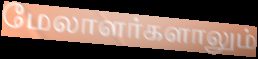
மேலாளர்களாலும்